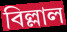
বিল্লাল